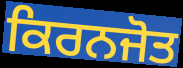
ਕਿਰਨਜੋਤ